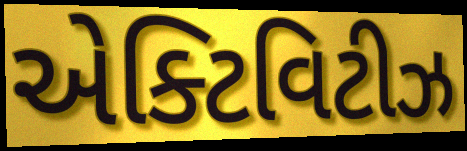
એક્ટિવિટીઝ